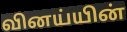
வினய்யின்